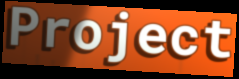
Project